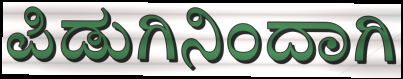
ಪಿಡುಗಿನಿಂದಾಗಿ